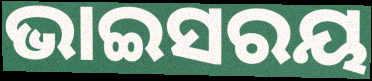
ଭାଇସରୟ